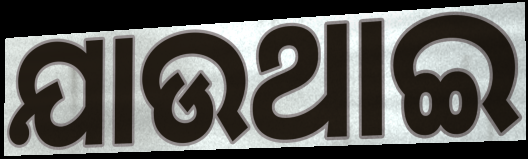
ଯାଉଥାଇ